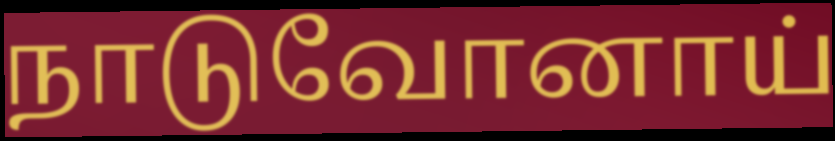
நாடுவோனாய்